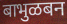
बाभुळबन